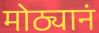
मोठ्यानं